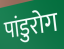
पांडुरोग